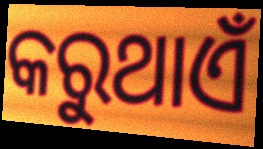
କରୁଥାଏଁ